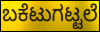
ಬಕೆಟುಗಟ್ಟಲೆ